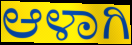
ಆಳಾಗಿ